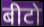
बीटो